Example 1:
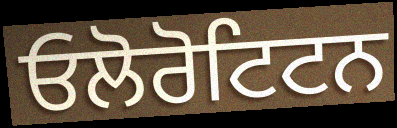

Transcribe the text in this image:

ਓਲੋਰੋਟਿਟਨ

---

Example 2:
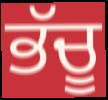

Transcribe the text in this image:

ਭੱਚੂ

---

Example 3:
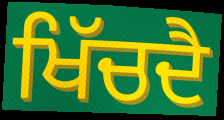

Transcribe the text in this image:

ਖਿੱਚਦੈ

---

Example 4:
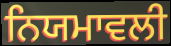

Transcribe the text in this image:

ਨਿਯਮਾਵਲੀ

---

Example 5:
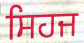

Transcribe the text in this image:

ਸਿਹਜ